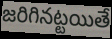
జరిగినట్టయితే